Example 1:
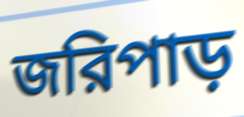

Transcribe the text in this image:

জরিপাড়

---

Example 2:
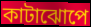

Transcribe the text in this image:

কাটাঝোপে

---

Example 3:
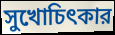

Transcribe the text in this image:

সুখোচিৎকার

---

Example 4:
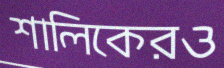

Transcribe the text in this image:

শালিকেরও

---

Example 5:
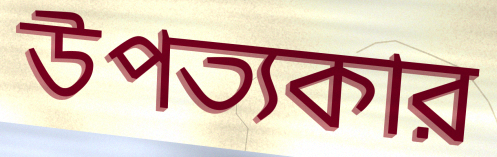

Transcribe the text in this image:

উপত্যকার